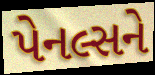
પેનલ્સને